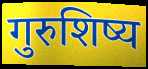
गुरुशिष्य